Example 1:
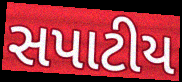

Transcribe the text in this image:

સપાટીય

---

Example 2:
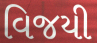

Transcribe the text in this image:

વિજયી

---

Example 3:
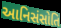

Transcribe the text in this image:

આનિસંસોતિ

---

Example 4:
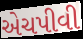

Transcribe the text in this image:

એચપીવી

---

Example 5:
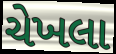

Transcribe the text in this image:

ચેખલા